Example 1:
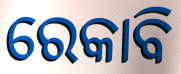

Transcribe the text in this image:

ରେକାବି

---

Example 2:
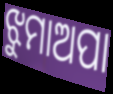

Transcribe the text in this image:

ଝୁମାଅପା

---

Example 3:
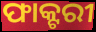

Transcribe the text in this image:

ଫାକ୍ଟରୀ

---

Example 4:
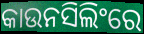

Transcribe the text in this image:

କାଉନସିଲିଂରେ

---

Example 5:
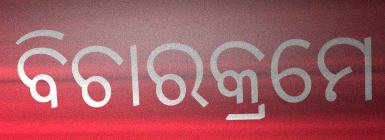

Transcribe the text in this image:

ବିଚାରକ୍ରମେ